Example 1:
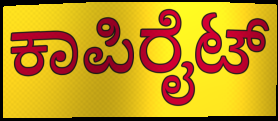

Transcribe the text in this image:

ಕಾಪಿರೈಟ್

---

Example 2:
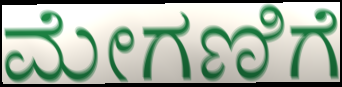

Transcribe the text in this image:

ಮೇಗಣಿಗೆ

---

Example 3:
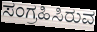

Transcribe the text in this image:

ಸಂಗ್ರಹಿಸಿರುವ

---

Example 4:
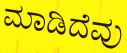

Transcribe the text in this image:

ಮಾಡಿದೆವು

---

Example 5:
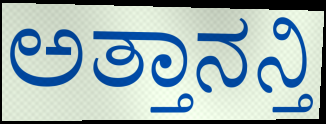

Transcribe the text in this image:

ಅತ್ತಾನನ್ತಿ